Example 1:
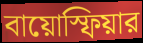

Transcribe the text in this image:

বায়োস্ফিয়ার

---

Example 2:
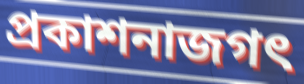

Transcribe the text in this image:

প্রকাশনাজগৎ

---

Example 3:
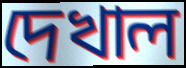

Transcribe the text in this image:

দেখাল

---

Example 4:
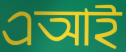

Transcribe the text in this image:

এআই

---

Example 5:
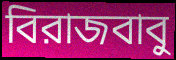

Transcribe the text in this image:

বিরাজবাবু